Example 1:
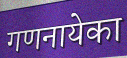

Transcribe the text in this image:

गणनायेका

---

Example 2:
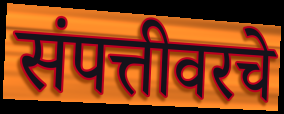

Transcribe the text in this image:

संपत्तीवरचे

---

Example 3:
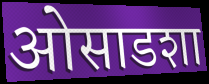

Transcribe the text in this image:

ओसाडशा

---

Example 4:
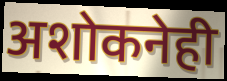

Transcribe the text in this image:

अशोकनेही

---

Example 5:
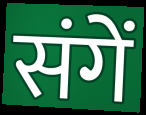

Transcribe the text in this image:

संगें